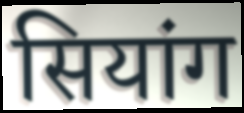
सियांग